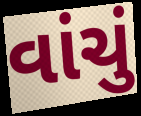
વાંચું